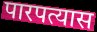
पारपत्यास